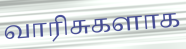
வாரிசுகளாக